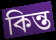
কিন্ত